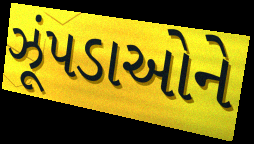
ઝૂંપડાઓને